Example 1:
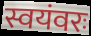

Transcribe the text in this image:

स्वयंवरः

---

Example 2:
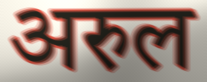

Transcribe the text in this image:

अरुल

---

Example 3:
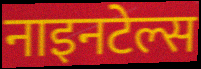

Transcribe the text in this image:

नाइनटेल्स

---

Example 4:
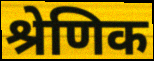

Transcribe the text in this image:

श्रेणिक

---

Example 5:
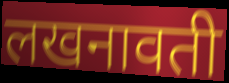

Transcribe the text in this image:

लखनावती